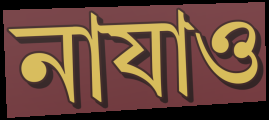
নাযাও